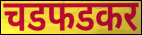
चडफडकर